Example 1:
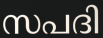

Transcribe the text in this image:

സപദി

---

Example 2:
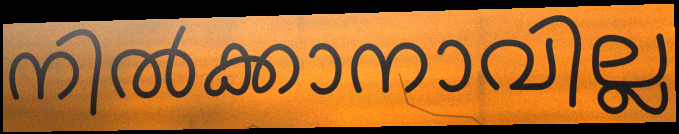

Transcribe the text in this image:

നിൽക്കാനാവില്ല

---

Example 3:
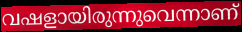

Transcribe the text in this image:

വഷളായിരുന്നുവെന്നാണ്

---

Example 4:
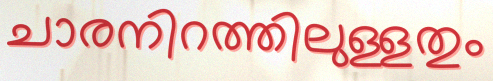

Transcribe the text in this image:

ചാരനിറത്തിലുള്ളതും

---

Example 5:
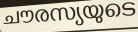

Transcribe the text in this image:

ചൗരസ്യയുടെ